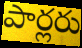
పార్లరు